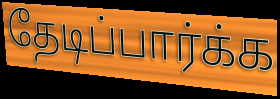
தேடிப்பார்க்க